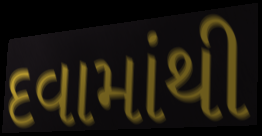
દવામાંથી